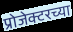
प्रोजेक्टरच्या